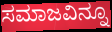
ಸಮಾಜವಿನ್ನೂ